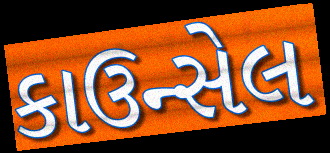
કાઉન્સેલ